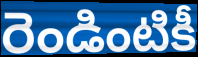
రెండింటికీ